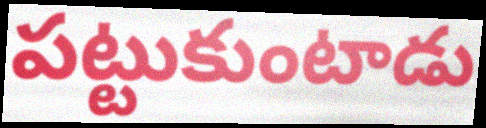
పట్టుకుంటాడు